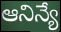
ఆనిన్యే